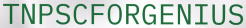
TNPSCFORGENIUS